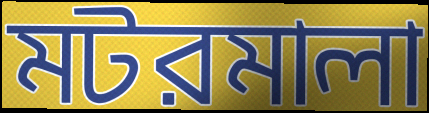
মটরমালা